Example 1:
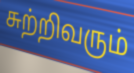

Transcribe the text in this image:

சுற்றிவரும்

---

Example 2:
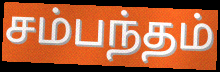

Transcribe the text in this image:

சம்பந்தம்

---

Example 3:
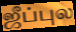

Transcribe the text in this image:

ஜீப்புல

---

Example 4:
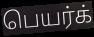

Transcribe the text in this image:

பெயர்க்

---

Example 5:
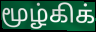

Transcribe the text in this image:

மூழ்கிக்